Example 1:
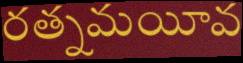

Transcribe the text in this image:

రత్నమయీవ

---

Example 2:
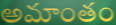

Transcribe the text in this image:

అమాంతం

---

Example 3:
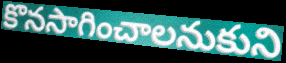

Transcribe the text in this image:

కొనసాగించాలనుకుని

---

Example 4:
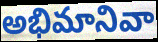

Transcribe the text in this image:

అభిమానివా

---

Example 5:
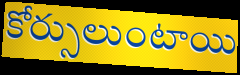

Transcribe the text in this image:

కోర్సులుంటాయి